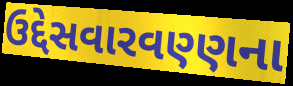
ઉદ્દેસવારવણ્ણના